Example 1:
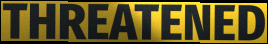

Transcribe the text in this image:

THREATENED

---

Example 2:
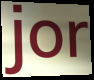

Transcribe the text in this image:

jor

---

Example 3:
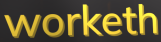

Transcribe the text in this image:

worketh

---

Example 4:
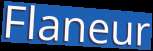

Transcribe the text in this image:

Flaneur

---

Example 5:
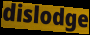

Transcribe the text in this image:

dislodge